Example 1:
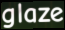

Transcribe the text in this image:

glaze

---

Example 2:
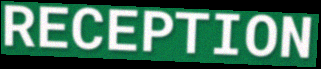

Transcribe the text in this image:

RECEPTION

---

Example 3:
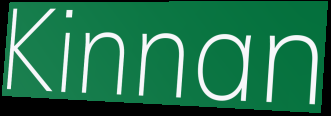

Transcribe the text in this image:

Kinnan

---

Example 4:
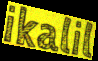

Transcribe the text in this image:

ikalil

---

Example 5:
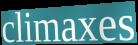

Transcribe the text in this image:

climaxes